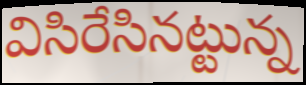
విసిరేసినట్టున్న